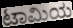
ಟಾಮಿಯ